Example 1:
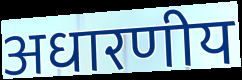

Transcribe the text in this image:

अधारणीय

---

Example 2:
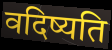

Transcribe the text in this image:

वदिष्यति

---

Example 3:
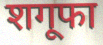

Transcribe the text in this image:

शगूफा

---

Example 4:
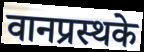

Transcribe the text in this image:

वानप्रस्थके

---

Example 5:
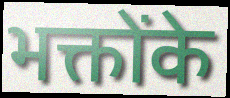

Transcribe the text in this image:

भक्तोंके